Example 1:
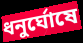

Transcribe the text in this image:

ধনুর্ঘোষে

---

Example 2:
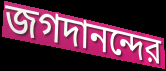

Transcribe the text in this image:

জগদানন্দের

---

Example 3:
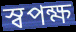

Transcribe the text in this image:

স্বপক্ষ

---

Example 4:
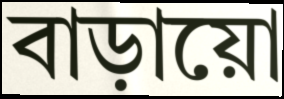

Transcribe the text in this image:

বাড়ায়ো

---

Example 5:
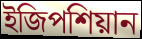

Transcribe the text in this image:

ইজিপশিয়ান